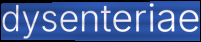
dysenteriae